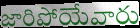
జారిపోయేవారు